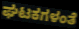
ಘಟಕಗಳಂತೆ